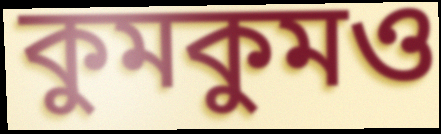
কুমকুমও